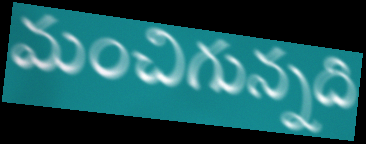
మంచిగున్నది